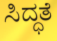
ಸಿದ್ಧತೆ